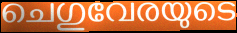
ചെഗുവേരയുടെ